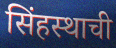
सिंहस्थाची